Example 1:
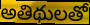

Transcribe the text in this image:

అతిథులతో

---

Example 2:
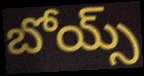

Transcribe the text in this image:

బోయ్స్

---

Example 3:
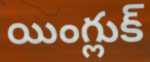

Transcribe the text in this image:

యింగ్లుక్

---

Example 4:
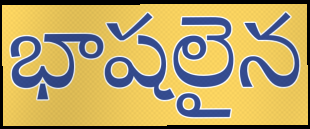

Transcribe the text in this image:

భాషలైన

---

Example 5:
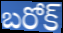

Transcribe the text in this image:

బరోక్